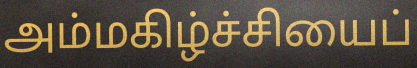
அம்மகிழ்ச்சியைப்